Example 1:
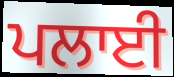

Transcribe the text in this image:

ਪਲਾਈ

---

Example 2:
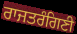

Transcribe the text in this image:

ਰਾਜਤਰੰਗਿਣੀ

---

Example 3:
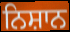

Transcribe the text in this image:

ਨਿਸ਼ਾਨ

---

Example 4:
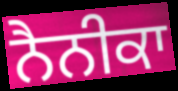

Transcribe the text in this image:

ਨੈਨੀਕਾ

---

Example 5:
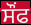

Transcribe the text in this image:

ਸੌਂਫ